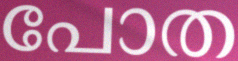
പോത